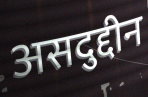
असदुद्दीन